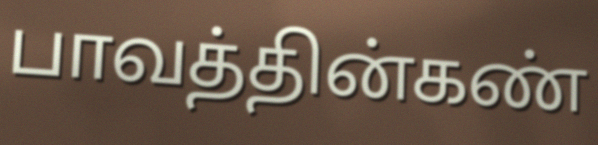
பாவத்தின்கண்